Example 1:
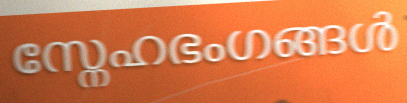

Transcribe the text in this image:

സ്നേഹഭംഗങ്ങൾ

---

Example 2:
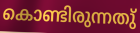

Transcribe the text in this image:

കൊണ്ടിരുന്നതു്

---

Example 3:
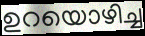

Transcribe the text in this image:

ഉറയൊഴിച്ച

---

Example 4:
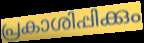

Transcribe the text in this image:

പ്രകാശിപ്പിക്കും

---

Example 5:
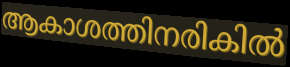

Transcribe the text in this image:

ആകാശത്തിനരികിൽ